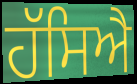
ਹੱਸਿਐ